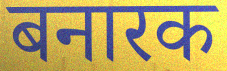
बनारक